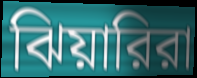
ঝিয়ারিরা